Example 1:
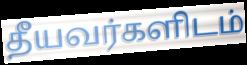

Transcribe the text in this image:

தீயவர்களிடம்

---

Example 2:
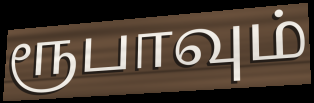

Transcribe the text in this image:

ரூபாவும்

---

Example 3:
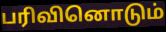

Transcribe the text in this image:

பரிவினொடும்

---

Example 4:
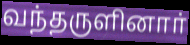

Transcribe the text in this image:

வந்தருளினார்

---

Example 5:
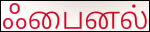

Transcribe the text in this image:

ஃபைனல்